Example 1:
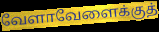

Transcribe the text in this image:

வேளாவேளைக்குத்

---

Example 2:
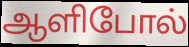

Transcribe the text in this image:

ஆளிபோல்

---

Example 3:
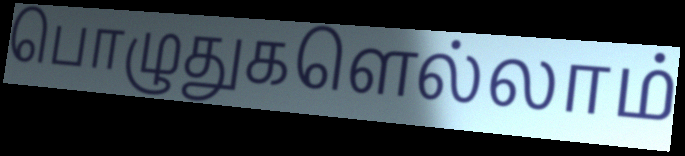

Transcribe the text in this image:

பொழுதுகளெல்லாம்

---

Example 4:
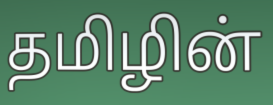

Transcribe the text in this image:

தமிழின்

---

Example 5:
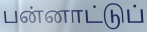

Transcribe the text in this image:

பன்னாட்டுப்